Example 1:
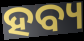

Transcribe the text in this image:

ହବ୍ୟ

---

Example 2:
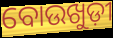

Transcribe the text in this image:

ବୋଉଖୁଡ଼ୀ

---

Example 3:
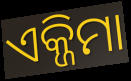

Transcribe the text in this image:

ଏକ୍ଜିମା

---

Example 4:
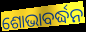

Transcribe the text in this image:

ଶୋଭାବର୍ଦ୍ଧନ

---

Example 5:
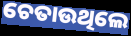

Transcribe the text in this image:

ଚେତାଉଥିଲେ